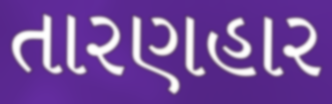
તારણહાર